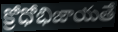
క్రోధోభిజాయతే